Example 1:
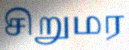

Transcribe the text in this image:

சிறுமர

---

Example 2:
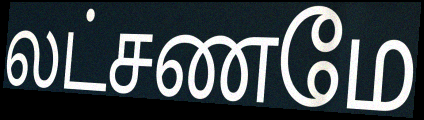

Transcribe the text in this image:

லட்சணமே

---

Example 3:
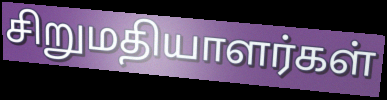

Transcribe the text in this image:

சிறுமதியாளர்கள்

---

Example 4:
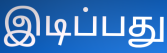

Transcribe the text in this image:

இடிப்பது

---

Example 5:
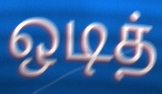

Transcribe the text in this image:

ஒடித்